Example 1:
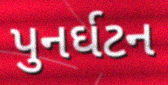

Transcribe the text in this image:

પુનર્ઘટન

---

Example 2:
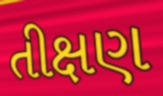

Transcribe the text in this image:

તીક્ષણ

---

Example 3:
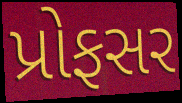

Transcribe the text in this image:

પ્રોફસર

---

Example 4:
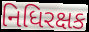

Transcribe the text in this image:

નિધિરક્ષક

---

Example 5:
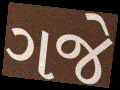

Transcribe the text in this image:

ગજે